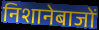
निशानेबाजों